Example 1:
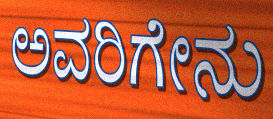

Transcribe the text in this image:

ಅವರಿಗೇನು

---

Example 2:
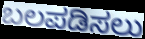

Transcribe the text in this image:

ಬಲಪಡಿಸಲು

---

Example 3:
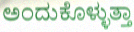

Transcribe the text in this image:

ಅಂದುಕೊಳ್ಳುತ್ತಾ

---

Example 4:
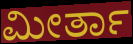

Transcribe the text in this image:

ಮೀರ್ತಾ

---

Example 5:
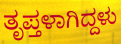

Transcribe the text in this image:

ತೃಪ್ತಳಾಗಿದ್ದಳು